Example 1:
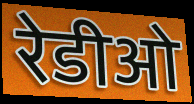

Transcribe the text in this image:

रेडीओ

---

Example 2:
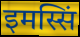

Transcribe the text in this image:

इमस्सिं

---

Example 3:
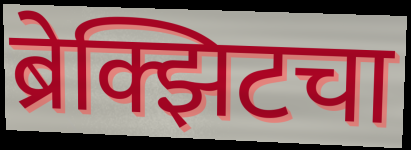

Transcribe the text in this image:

ब्रेक्झिटचा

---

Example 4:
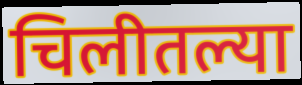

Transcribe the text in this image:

चिलीतल्या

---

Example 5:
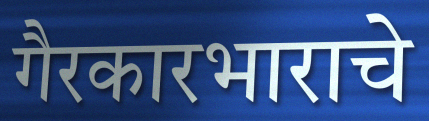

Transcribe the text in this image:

गैरकारभाराचे